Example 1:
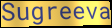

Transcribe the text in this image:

Sugreeva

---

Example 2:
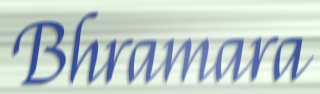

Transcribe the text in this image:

Bhramara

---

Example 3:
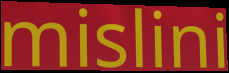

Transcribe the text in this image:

mislini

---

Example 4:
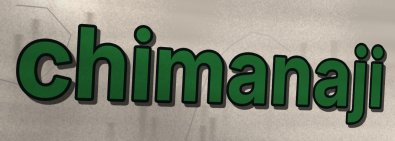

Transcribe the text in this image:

chimanaji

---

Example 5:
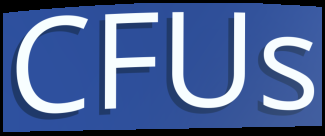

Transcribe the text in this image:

CFUs